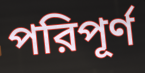
পরিপূর্ণ